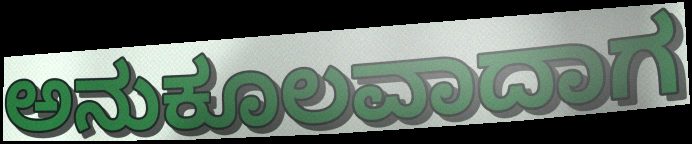
ಅನುಕೂಲವಾದಾಗ